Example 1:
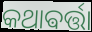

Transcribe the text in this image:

କଥାଵର୍ତ୍ତା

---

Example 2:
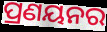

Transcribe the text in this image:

ପ୍ରଣୟନର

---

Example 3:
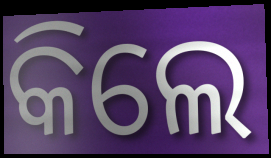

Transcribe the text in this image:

କିଲେ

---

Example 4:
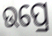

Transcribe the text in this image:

ଉପ୍ରେ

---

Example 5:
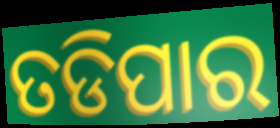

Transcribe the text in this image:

ତଡିପାର